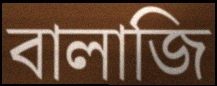
বালাজি